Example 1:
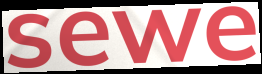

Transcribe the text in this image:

sewe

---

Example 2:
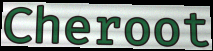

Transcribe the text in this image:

Cheroot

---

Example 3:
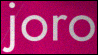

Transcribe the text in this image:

joro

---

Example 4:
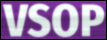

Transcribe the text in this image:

VSOP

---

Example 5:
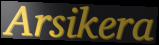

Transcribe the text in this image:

Arsikera